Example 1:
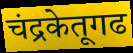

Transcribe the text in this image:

चंद्रकेतूगढ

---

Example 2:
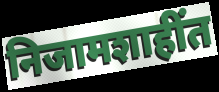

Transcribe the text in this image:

निजामशाहींत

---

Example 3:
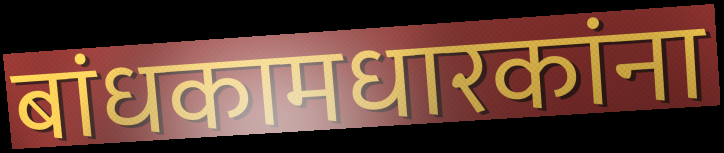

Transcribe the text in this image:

बांधकामधारकांना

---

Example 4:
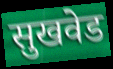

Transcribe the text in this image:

सुखवेड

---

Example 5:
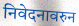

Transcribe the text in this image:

निवेदनावरुन